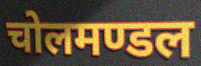
चोलमण्डल